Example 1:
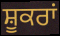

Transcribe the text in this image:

ਸ਼ੂਕਰਾਂ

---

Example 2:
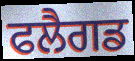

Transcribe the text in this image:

ਫਲੈਗਡ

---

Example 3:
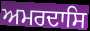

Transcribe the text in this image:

ਅਮਰਦਾਸਿ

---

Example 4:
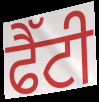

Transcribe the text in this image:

ਫੈੱਟੀ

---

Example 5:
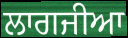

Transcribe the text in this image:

ਲਾਗਜੀਆ